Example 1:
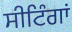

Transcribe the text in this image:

ਸੀਟਿੰਗਾਂ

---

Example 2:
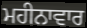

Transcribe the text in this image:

ਮਹੀਨਾਵਾਰ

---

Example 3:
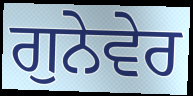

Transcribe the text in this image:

ਗੁਨੇਵੇਰ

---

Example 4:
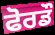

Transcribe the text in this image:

ਫੋਰਡੌ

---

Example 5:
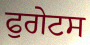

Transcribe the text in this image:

ਫੁਗੇਟਸ